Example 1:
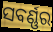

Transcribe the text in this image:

ସବର୍ଣ୍ଣର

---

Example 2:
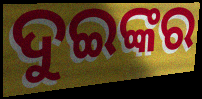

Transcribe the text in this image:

ଦୁଇଙ୍କର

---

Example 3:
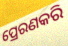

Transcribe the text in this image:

ପ୍ରେରଣକରି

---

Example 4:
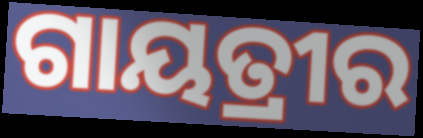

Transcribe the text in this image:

ଗାୟତ୍ରୀର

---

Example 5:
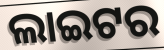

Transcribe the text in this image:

ଲାଇଟର